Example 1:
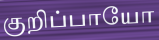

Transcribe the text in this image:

குறிப்பாயோ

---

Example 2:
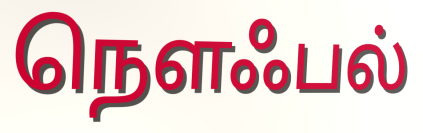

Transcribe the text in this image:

நௌஃபல்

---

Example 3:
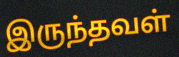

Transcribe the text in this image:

இருந்தவள்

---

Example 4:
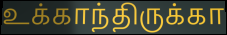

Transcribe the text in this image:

உக்காந்திருக்கா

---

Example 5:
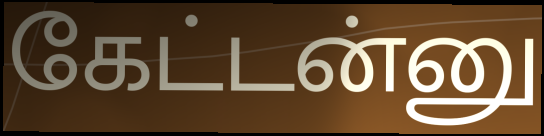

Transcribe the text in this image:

கேட்டன்னு